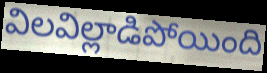
విలవిల్లాడిపోయింది